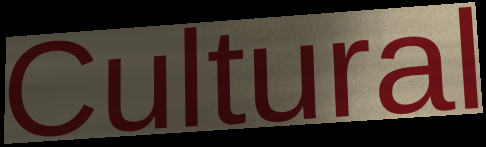
Cultural